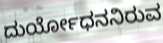
ದುರ್ಯೋಧನನಿರುವ